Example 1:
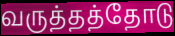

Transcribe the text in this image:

வருத்தத்தோடு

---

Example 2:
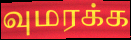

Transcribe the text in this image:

வுமரக்க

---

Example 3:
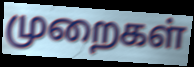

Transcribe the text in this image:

முறைகள்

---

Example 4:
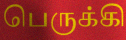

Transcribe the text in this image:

பெருக்கி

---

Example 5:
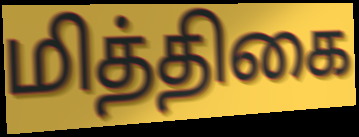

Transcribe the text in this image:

மித்திகை